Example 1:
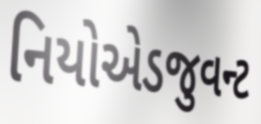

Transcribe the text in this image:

નિયોએડજુવન્ટ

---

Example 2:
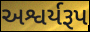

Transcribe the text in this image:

અશ્વર્યરૂપ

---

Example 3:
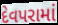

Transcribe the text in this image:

દેવપરામાં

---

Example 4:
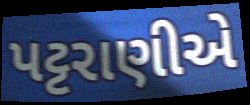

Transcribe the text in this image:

પટ્ટરાણીએ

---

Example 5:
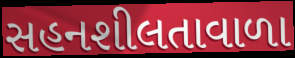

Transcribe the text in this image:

સહનશીલતાવાળા